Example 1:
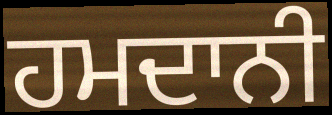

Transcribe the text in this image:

ਹਮਦਾਨੀ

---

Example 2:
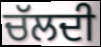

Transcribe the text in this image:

ਚੱਲਦੀ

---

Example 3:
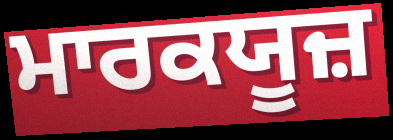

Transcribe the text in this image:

ਮਾਰਕਯੂਜ਼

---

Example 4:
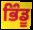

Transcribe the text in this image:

ਭਿੰਡੂ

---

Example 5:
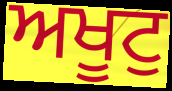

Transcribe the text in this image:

ਅਖੂਟੁ